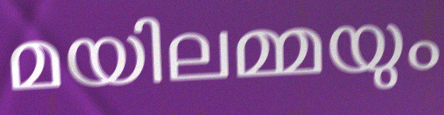
മയിലമ്മയും